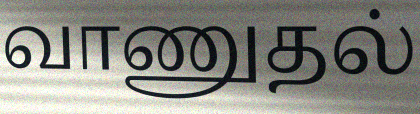
வாணுதல்